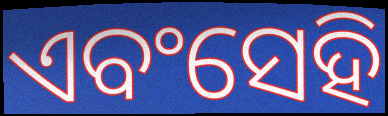
ଏବଂସେହି